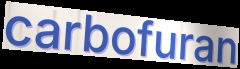
carbofuran